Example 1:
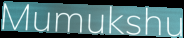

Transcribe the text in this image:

Mumukshu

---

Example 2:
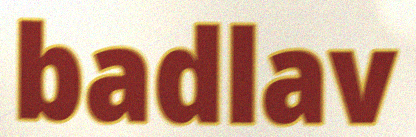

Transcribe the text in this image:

badlav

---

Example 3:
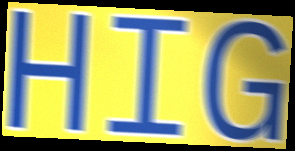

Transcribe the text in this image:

HIG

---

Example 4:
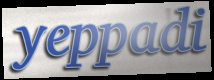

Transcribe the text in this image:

yeppadi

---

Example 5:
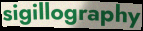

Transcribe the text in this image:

sigillography